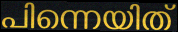
പിന്നെയിത്